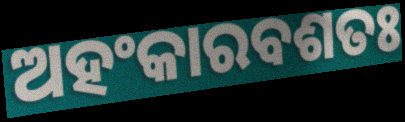
ଅହଂକାରବଶତଃ